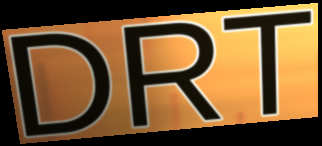
DRT